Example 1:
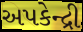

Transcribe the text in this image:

અપકેન્દ્રી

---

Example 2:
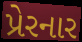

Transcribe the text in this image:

પ્રેરનાર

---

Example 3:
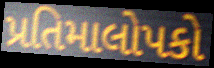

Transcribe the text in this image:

પ્રતિમાલોપકો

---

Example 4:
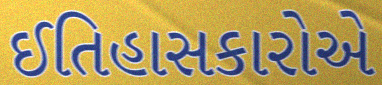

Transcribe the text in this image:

ઈતિહાસકારોએ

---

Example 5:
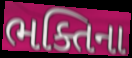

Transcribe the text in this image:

ભક્તિના